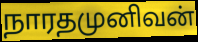
நாரதமுனிவன்